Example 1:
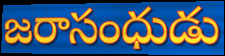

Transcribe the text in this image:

జరాసంధుడు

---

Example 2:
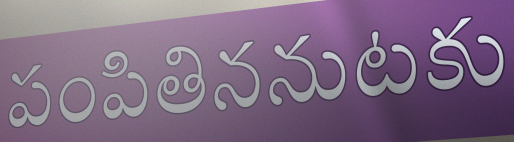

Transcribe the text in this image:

పంపితిననుటకు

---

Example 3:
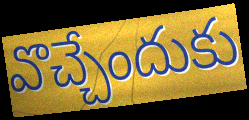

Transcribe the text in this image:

వొచ్చేందుకు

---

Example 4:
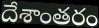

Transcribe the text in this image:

దేశాంతరం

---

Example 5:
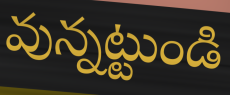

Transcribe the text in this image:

వున్నట్టుండి